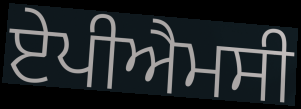
ਏਪੀਐਮਸੀ